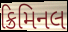
ક્રિમિનલ